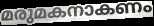
മരുമകനാകണം